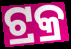
ଟ୍ରକ୍ର